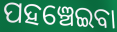
ପହଞ୍ଚେଇବା